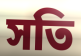
সতি